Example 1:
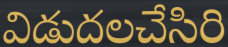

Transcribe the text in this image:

విడుదలచేసిరి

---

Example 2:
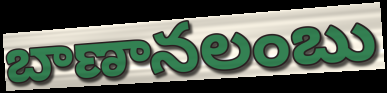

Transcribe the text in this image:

బాణానలంబు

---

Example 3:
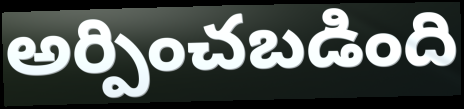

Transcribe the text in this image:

అర్పించబడింది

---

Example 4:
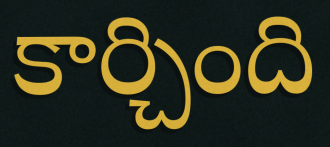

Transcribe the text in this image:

కార్చింది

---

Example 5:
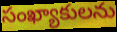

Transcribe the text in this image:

సంఖ్యాకులను